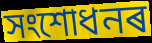
সংশোধনৰ